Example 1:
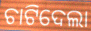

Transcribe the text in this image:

ଚାଟିଦେଲା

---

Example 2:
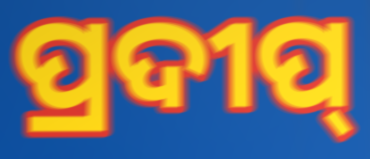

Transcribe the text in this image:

ପ୍ରଦୀପ୍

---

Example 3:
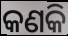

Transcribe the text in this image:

କଣକି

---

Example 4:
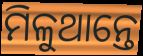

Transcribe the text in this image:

ମିଳୁଥାନ୍ତେ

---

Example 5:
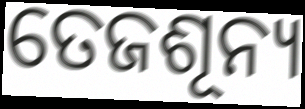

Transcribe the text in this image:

ତେଜଶୂନ୍ୟ